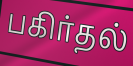
பகிர்தல்